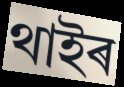
থাইৰ